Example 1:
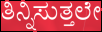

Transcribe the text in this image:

ತಿನ್ನಿಸುತ್ತಲೇ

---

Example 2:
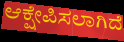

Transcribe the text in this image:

ಆಕ್ಷೇಪಿಸಲಾಗಿದೆ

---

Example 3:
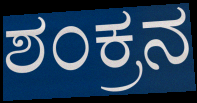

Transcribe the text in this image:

ಶಂಕ್ರನ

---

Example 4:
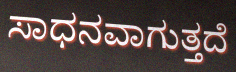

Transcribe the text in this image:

ಸಾಧನವಾಗುತ್ತದೆ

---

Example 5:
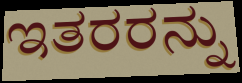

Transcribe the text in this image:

ಇತರರನ್ನು